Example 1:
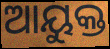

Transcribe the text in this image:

ଆୟୁକ୍ତ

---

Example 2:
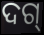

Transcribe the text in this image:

ଦଗ୍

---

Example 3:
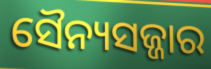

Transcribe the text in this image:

ସୈନ୍ୟସଜ୍ଜାର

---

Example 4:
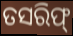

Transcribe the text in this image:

ତସରିଫ୍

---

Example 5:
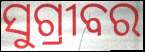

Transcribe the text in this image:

ସୁଗ୍ରୀବର